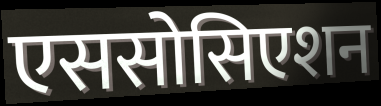
एससोसिएशन